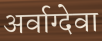
अर्वाग्देवा